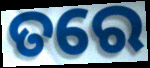
ତରେ